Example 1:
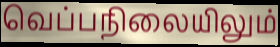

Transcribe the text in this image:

வெப்பநிலையிலும்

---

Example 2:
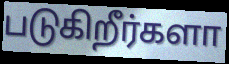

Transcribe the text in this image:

படுகிறீர்களா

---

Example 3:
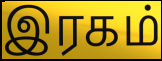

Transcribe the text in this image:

இரகம்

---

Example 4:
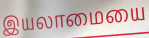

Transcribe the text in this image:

இயலாமையை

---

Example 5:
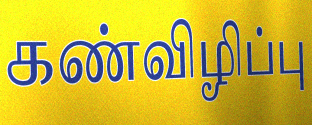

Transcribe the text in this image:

கண்விழிப்பு